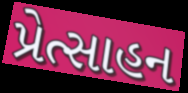
પ્રેત્સાહન